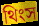
থিংস